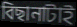
বিছানাটাই